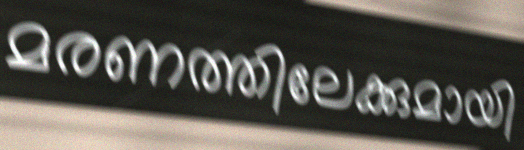
മരണത്തിലേക്കുമായി